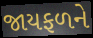
જાયફળને